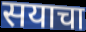
सयाचा